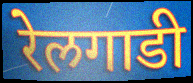
रेलगाडी